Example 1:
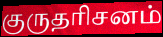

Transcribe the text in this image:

குருதரிசனம்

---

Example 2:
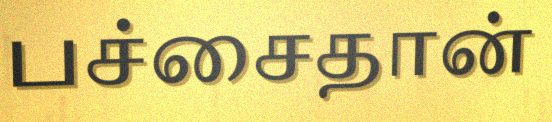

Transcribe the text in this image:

பச்சைதான்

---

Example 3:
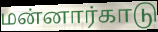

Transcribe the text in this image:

மன்னார்காடு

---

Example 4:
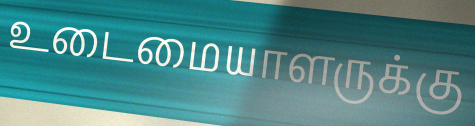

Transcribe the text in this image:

உடைமையாளருக்கு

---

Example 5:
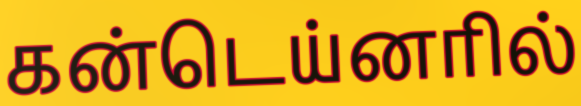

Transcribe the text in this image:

கன்டெய்னரில்